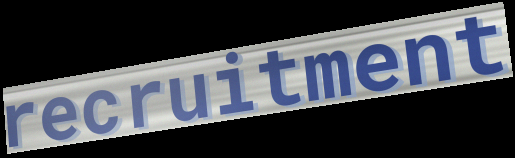
recruitment